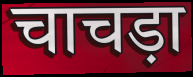
चाचड़ा